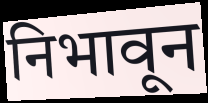
निभावून